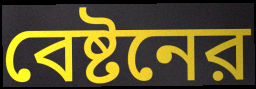
বেষ্টনের